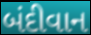
બંદીવાન